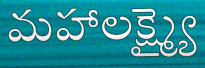
మహాలక్ష్మ్యై